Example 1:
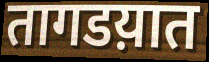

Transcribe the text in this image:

तागडय़ात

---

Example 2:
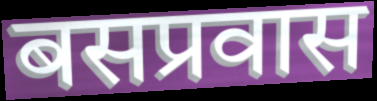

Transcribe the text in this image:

बसप्रवास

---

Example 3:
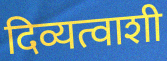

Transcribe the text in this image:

दिव्यत्वाशी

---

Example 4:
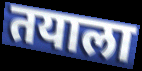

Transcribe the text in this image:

तयाला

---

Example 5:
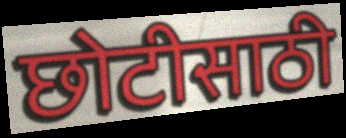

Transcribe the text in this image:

छोटीसाठी